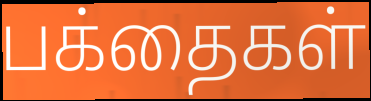
பக்தைகள்